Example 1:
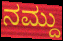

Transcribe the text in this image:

ನಮ್ದು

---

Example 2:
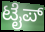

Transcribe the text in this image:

ಟೈಪ್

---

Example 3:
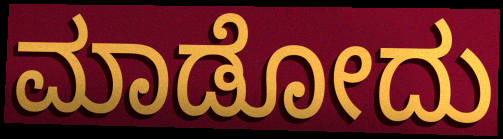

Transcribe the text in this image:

ಮಾಡೋದು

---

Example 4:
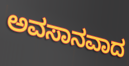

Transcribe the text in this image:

ಅವಸಾನವಾದ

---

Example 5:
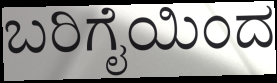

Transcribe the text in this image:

ಬರಿಗೈಯಿಂದ